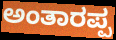
ಅಂತಾರಪ್ಪ